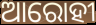
ଆରୋହୀ